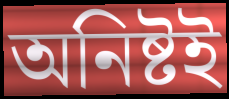
অনিষ্টই